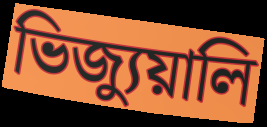
ভিজ্যুয়ালি